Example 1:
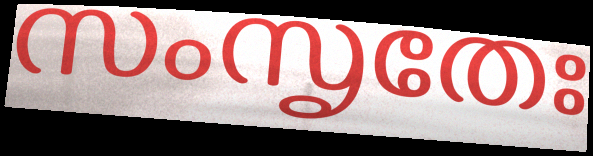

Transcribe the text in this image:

സംസൃതേഃ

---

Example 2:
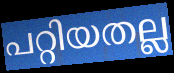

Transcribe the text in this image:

പറ്റിയതല്ല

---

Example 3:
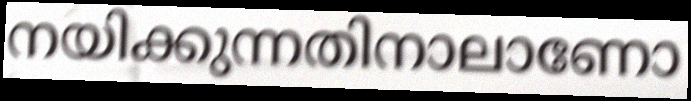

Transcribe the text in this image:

നയിക്കുന്നതിനാലാണോ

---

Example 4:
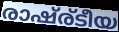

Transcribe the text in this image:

രാഷ്ര്ടീയ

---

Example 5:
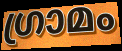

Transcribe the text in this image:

ഗ്രാമം